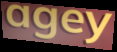
agey